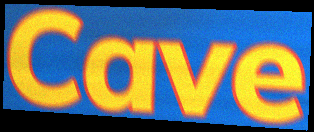
Cave